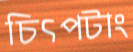
চিৎপটাং